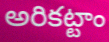
అరికట్టాం